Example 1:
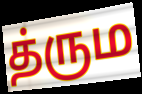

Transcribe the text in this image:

த்ரும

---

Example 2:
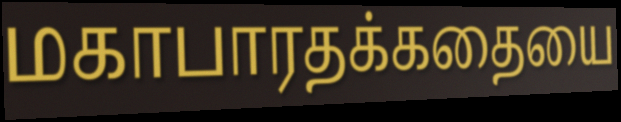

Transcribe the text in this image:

மகாபாரதக்கதையை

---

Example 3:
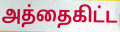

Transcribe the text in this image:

அத்தைகிட்ட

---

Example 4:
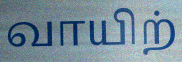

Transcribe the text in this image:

வாயிற்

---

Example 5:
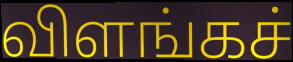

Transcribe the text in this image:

விளங்கச்